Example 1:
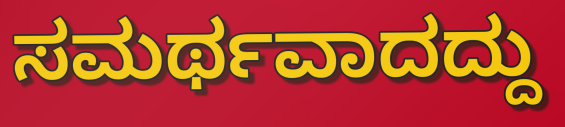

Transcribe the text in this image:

ಸಮರ್ಥವಾದದ್ದು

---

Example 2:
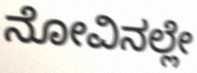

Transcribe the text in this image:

ನೋವಿನಲ್ಲೇ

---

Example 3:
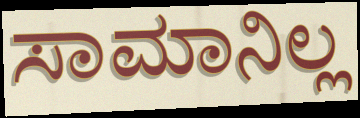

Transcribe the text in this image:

ಸಾಮಾನಿಲ್ಲ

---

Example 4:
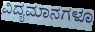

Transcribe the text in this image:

ವಿದ್ಯಮಾನಗಳೂ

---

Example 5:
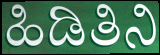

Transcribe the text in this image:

ಹಿಡಿತಿನಿ